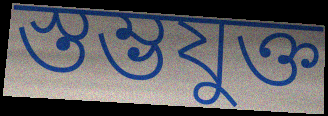
স্তম্ভযুক্ত